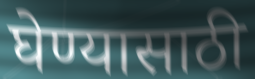
घेण्यासाठी